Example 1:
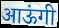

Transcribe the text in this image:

आऊंगी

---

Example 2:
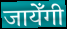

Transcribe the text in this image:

जायेँगी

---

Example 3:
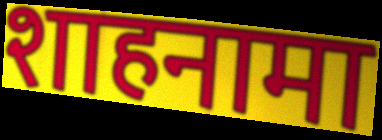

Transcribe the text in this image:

शाहनामा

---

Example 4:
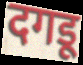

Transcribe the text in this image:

दगडू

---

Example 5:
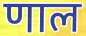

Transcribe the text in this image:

णाल